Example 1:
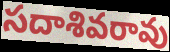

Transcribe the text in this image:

సదాశివరావు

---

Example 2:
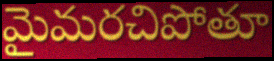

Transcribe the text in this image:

మైమరచిపోతూ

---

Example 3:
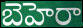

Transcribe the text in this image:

బెహెరా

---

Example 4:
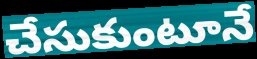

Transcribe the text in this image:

చేసుకుంటూనే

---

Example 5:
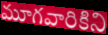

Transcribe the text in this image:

మూగవారికిని